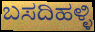
ಬಸದಿಹಳ್ಳಿ